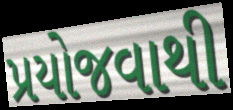
પ્રયોજવાથી